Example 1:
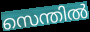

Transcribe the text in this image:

സെന്തിൽ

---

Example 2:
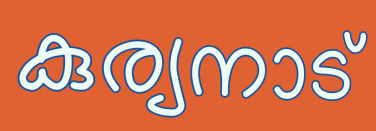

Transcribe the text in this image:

കുര്യനാട്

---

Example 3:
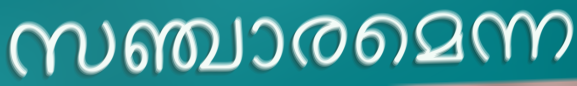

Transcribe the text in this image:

സഞ്ചാരമെന്ന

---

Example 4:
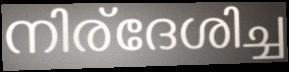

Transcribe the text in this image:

നിര്ദേശിച്ച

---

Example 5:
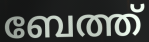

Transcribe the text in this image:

ബേത്ത്